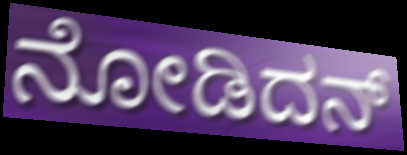
ನೋಡಿದನ್